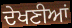
ਦੇਖਣੀਆਂ